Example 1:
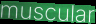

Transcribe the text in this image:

muscular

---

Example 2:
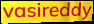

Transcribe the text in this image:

vasireddy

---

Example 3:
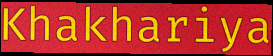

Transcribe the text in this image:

Khakhariya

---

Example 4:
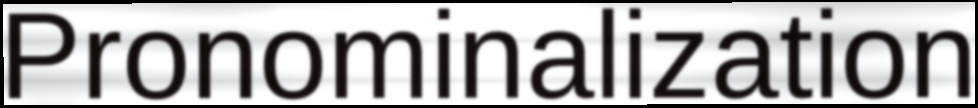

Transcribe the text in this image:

Pronominalization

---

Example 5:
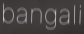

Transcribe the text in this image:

bangali